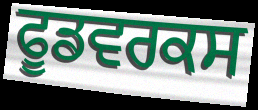
ਫੂਡਵਰਕਸ